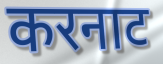
करनाट